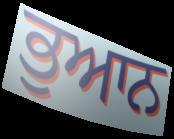
ਭੁਆਨ